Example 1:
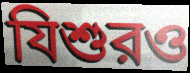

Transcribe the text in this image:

যিশুরও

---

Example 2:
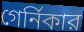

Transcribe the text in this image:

গের্নিকার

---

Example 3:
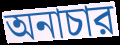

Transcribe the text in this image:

অনাচার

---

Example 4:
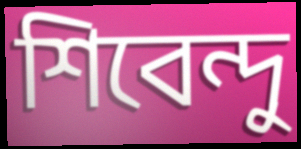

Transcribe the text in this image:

শিবেন্দু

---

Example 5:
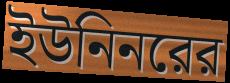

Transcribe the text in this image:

ইউনিনরের